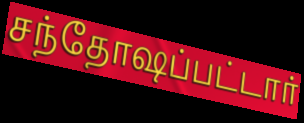
சந்தோஷப்பட்டார்